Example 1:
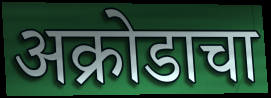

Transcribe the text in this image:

अक्रोडाचा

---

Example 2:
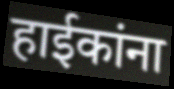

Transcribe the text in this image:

हाईकांना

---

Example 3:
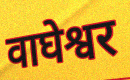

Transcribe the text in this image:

वाघेश्वर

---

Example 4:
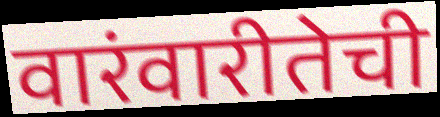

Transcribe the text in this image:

वारंवारीतेची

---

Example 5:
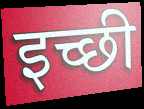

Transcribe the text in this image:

इच्छी